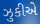
ઝુકીએ